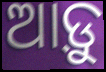
ଆଡ଼ୁ